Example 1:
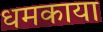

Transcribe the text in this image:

धमकाया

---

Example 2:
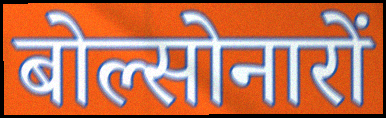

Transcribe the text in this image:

बोल्सोनारों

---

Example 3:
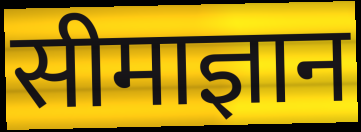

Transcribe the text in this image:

सीमाज्ञान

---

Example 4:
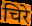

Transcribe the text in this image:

चिरे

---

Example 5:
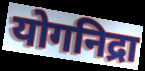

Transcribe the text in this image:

योगनिद्रा